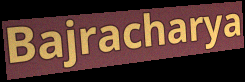
Bajracharya